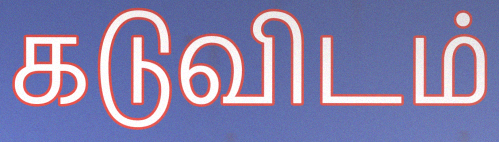
கடுவிடம்